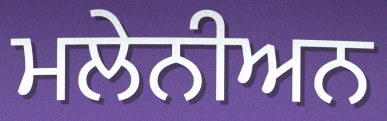
ਮਲੇਨੀਅਨ